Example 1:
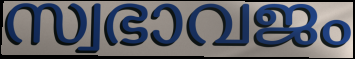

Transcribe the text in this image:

സ്വഭാവജം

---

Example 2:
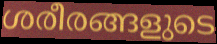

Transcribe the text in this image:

ശരീരങ്ങളുടെ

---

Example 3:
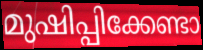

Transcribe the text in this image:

മുഷിപ്പിക്കേണ്ടാ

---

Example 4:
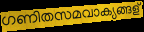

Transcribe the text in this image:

ഗണിതസമവാക്യങ്ങള്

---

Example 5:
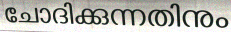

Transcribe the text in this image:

ചോദിക്കുന്നതിനും